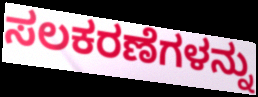
ಸಲಕರಣೆಗಳನ್ನು